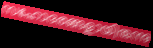
സഹോദരങ്ങളായിരുന്നു